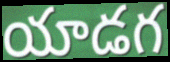
యాడగ